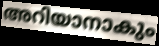
അറിയാനാകും